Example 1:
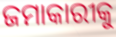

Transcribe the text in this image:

ଜମାକାରୀକୁ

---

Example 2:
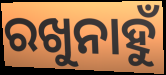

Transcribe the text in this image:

ରଖୁନାହୁଁ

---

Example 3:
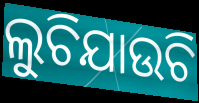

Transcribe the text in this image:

ଲୁଚିଯାଉଚି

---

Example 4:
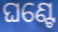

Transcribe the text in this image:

ଘଣ୍ଟେ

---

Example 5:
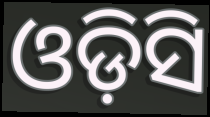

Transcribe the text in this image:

ଓଡ଼ିସି